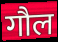
गौल